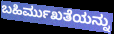
ಬಹಿರ್ಮುಖತೆಯನ್ನು